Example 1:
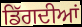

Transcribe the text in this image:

ਡਿੱਗਦੀਆਂ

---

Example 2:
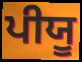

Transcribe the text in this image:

ਪੀਯੂ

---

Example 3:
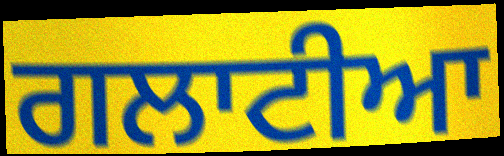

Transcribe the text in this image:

ਗਲਾਟੀਆ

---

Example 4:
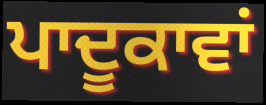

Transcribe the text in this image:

ਪਾਦੂਕਾਵਾਂ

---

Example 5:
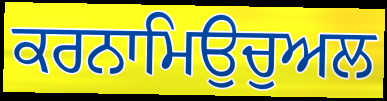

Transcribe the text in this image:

ਕਰਨਾਮਿਉਚੁਅਲ